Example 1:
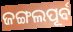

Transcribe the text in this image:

ଜଙ୍ଗଲପୂର୍ବ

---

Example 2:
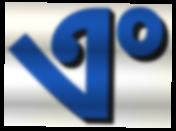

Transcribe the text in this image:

ଏଂ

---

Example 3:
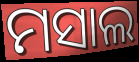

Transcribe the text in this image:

ମସାଲ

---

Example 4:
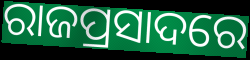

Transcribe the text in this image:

ରାଜପ୍ରସାଦରେ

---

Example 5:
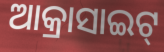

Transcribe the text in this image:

ଆକ୍ରାସାଇଟ୍